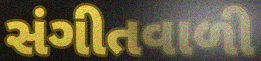
સંગીતવાળી